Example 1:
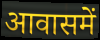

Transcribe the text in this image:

आवासमें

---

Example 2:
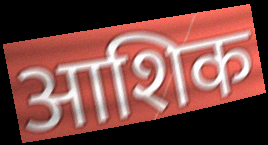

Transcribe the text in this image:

आशिक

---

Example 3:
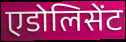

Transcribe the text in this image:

एडोलिसेंट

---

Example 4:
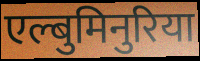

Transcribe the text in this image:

एल्बुमिनुरिया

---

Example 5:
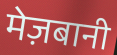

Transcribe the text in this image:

मेज़बानी